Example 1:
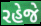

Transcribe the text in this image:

રહેજે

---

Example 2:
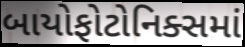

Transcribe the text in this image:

બાયોફોટોનિક્સમાં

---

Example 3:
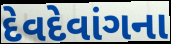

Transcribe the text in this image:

દેવદેવાંગના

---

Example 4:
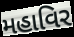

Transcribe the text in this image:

મહાવિર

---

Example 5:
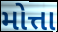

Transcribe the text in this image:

મોત્તા